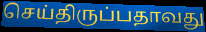
செய்திருப்பதாவது